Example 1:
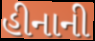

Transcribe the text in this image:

હીનાની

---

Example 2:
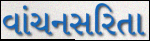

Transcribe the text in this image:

વાંચનસરિતા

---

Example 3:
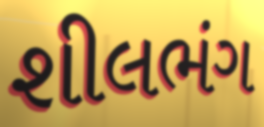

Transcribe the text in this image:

શીલભંગ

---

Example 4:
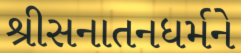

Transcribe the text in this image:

શ્રીસનાતનધર્મને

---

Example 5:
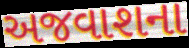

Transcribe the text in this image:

અજવાશના